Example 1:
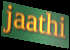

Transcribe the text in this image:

jaathi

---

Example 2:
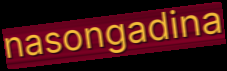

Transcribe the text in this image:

nasongadina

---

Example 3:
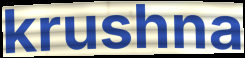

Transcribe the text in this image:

krushna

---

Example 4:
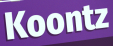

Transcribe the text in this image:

Koontz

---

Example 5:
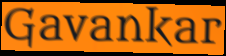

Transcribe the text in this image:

Gavankar